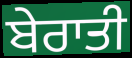
ਬੇਰਾਤੀ